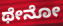
ಥೇನೋ